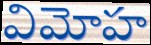
విమోహ